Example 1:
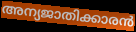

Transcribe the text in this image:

അന്യജാതിക്കാരൻ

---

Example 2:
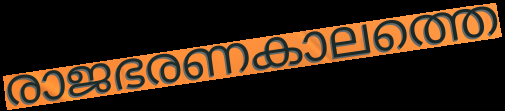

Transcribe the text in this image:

രാജഭരണകാലത്തെ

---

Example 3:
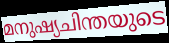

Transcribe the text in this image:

മനുഷ്യചിന്തയുടെ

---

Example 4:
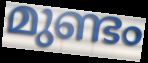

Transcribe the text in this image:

മുണ്ടം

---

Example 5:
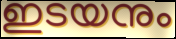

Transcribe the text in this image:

ഇടയനും